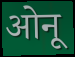
ओनू